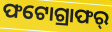
ଫଟୋଗ୍ରାଫର୍